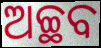
ଅଚ୍ଛବ